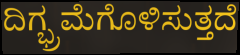
ದಿಗ್ಭ್ರಮೆಗೊಳಿಸುತ್ತದೆ